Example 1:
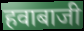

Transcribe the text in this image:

हवाबाजी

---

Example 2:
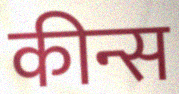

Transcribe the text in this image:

कीन्स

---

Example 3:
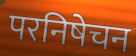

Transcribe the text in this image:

परनिषेचन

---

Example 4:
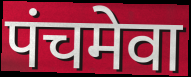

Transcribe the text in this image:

पंचमेवा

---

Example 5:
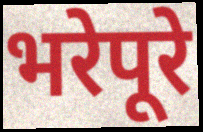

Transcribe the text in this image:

भरेपूरे